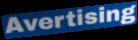
Avertising